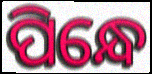
ପିନ୍ଧେ